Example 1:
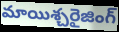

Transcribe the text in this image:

మాయిశ్చరైజింగ్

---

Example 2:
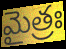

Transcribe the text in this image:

మైత్రః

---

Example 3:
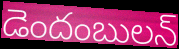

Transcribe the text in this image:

డెందంబులన్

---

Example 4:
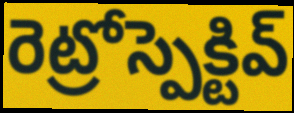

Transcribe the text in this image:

రెట్రోస్పెక్టివ్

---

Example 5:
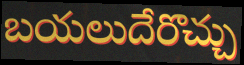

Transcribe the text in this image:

బయలుదేరొచ్చు